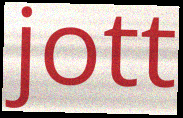
jott